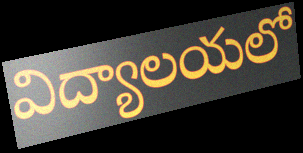
విద్యాలయలో